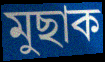
মুছাক